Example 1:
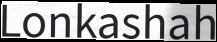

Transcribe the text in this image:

Lonkashah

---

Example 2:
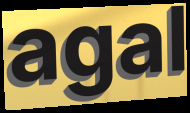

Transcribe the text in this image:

agal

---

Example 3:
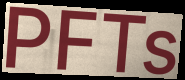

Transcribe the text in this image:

PFTs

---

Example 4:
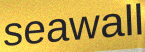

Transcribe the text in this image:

seawall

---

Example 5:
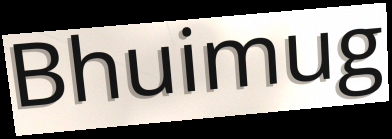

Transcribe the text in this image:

Bhuimug